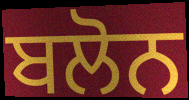
ਬਲੋਨ